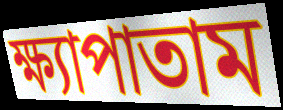
ক্ষ্যাপাতাম